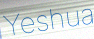
Yeshua